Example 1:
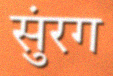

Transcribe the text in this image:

सुंरग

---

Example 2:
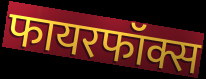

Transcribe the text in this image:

फायरफॉक्स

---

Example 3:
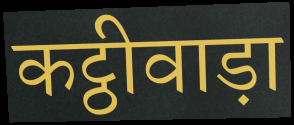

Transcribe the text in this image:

कट्ठीवाड़ा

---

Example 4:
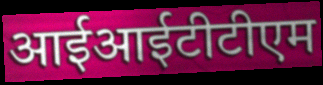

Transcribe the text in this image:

आईआईटीटीएम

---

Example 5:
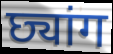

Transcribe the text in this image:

छ्यांग